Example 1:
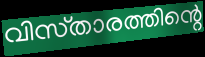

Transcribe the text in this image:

വിസ്‌താരത്തിന്റെ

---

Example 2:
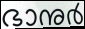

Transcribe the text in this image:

ഭാനുർ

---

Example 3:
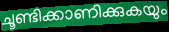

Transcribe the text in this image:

ചൂണ്ടിക്കാണിക്കുകയും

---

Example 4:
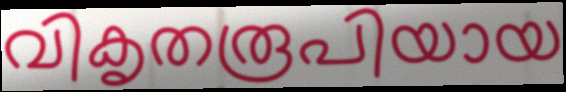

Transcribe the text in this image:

വികൃതരൂപിയായ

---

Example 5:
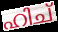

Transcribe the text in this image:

ഹിച്